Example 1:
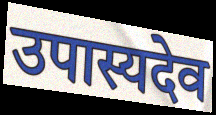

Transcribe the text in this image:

उपास्यदेव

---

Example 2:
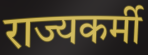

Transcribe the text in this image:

राज्यकर्मी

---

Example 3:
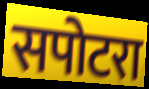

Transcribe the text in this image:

सपोटरा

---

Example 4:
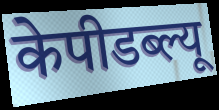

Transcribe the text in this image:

केपीडब्ल्यू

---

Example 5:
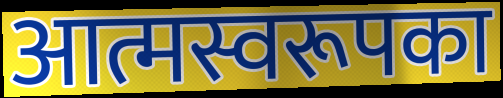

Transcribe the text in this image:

आत्मस्वरूपका